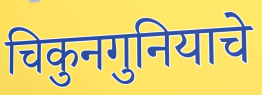
चिकुनगुनियाचे